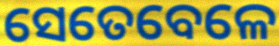
ସେତେବେଳେ